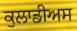
ਕੁਲਾਡੀਅਸ